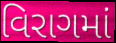
વિરાગમાં